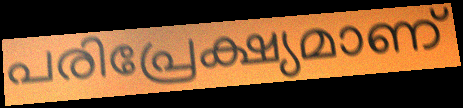
പരിപ്രേക്ഷ്യമാണ്